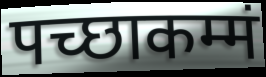
पच्छाकम्मं